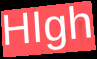
HIgh